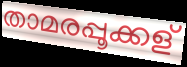
താമരപ്പൂക്കള്